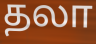
தலா